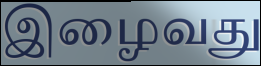
இழைவது